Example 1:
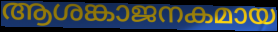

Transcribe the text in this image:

ആശങ്കാജനകമായ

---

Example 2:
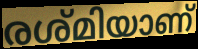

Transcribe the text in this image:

രശ്മിയാണ്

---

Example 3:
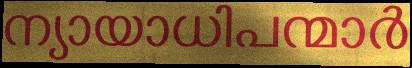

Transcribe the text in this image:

ന്യായാധിപന്മാർ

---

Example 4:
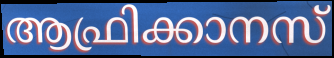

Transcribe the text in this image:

ആഫ്രിക്കാനസ്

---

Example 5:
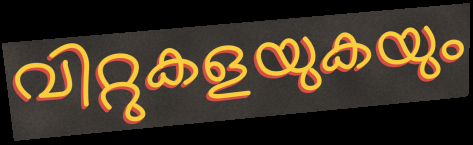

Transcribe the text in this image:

വിറ്റുകളയുകയും